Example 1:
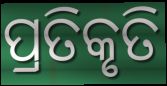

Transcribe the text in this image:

ପ୍ରତିକୃତି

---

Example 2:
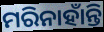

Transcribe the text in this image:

ମରିନାହାଁନ୍ତି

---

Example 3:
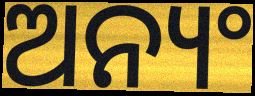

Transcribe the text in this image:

ଅନ୍ୟଂ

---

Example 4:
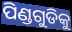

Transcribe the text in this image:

ପିଣ୍ଡଗୁଡିକୁ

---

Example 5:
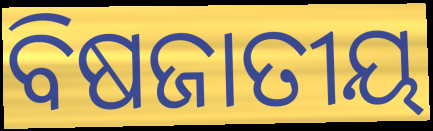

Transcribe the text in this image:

ବିଷଜାତୀୟ